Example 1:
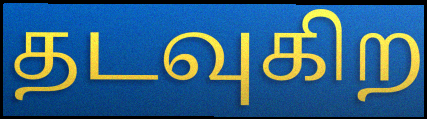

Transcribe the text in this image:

தடவுகிற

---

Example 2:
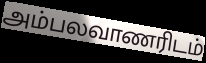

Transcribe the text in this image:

அம்பலவாணரிடம்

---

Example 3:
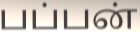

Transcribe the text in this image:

பப்பன்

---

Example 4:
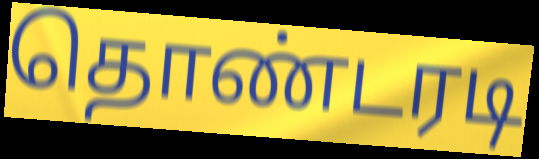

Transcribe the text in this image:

தொண்டரடி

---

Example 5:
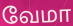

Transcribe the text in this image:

வேமா